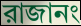
রাজানং